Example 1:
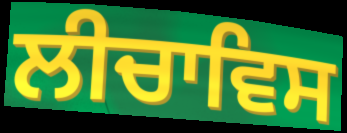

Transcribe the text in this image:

ਲੀਚਾਵਿਸ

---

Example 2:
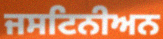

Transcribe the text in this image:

ਜਸਟਿਨੀਅਨ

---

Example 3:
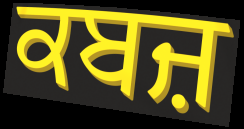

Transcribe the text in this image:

ਕਬਜ਼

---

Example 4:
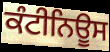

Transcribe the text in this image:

ਕੰਟੀਨਿਊਸ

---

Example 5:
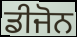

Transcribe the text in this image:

ਡੀਜੋਨ